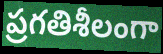
ప్రగతిశీలంగా